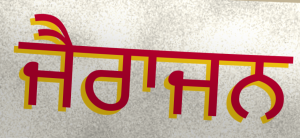
ਜੈਰਾਜਨ